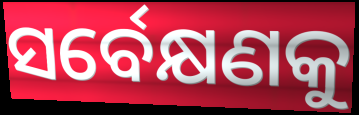
ସର୍ବେକ୍ଷଣକୁ